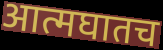
आत्मघातच